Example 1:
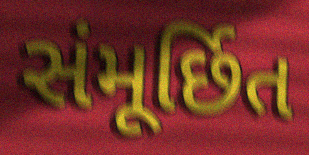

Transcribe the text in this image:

સંમૂર્છિત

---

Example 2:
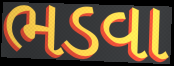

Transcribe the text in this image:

ભડવા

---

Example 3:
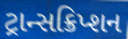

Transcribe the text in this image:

ટ્રાન્સક્રિપ્શન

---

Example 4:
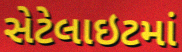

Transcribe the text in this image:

સેટેલાઇટમાં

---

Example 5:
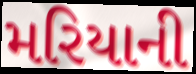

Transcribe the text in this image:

મરિયાની